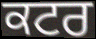
ਕਟਰ